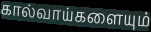
கால்வாய்களையும்